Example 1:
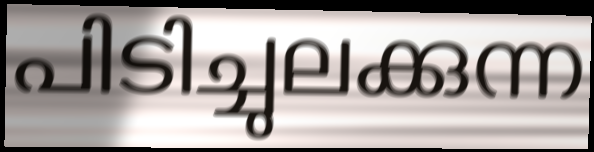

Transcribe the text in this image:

പിടിച്ചുലക്കുന്ന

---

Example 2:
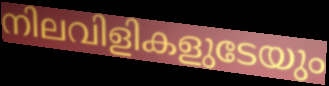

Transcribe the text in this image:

നിലവിളികളുടേയും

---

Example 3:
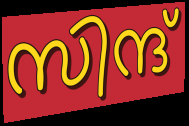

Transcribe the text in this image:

സിന്ദ്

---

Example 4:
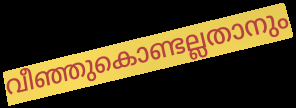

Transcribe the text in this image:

വീഞ്ഞുകൊണ്ടല്ലതാനും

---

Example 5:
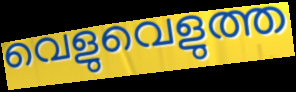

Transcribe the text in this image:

വെളുവെളുത്ത